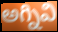
అగ్నివి